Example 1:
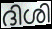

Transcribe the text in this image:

ദിശി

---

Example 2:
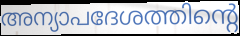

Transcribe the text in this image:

അന്യാപദേശത്തിന്റെ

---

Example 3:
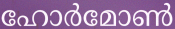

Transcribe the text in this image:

ഹോർമോൺ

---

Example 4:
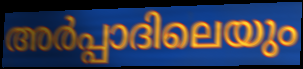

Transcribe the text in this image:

അർപ്പാദിലെയും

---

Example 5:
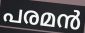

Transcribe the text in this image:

പരമൻ